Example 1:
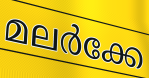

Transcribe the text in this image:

മലർക്കേ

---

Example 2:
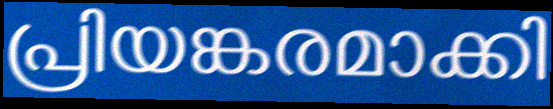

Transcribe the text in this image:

പ്രിയങ്കരമാക്കി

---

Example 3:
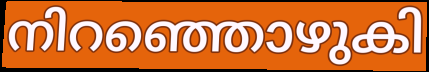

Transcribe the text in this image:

നിറഞ്ഞൊഴുകി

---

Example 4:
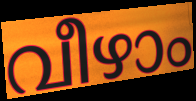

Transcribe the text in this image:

വീഴാം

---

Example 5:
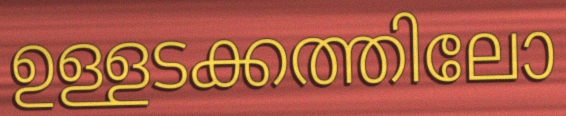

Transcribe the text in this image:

ഉള്ളടക്കത്തിലോ